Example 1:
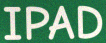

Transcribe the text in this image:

IPAD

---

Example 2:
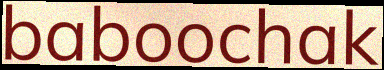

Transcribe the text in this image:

baboochak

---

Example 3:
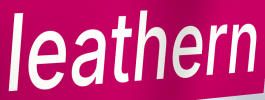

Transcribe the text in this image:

leathern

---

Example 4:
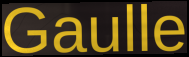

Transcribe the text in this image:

Gaulle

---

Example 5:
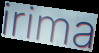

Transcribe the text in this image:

irima